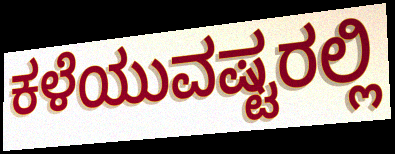
ಕಳೆಯುವಷ್ಟರಲ್ಲಿ